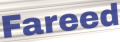
Fareed